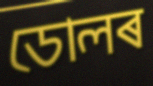
ডোলৰ